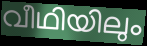
വീഥിയിലും